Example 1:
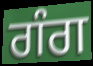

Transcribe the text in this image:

ਗੰਗ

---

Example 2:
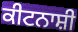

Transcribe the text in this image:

ਕੀਟਨਾਸ਼ੀ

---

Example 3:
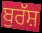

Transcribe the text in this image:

ਬੁਰੱਸ਼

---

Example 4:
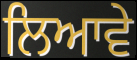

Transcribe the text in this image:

ਲਿਆਵੇ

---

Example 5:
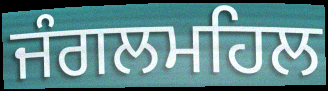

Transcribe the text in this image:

ਜੰਗਲਮਹਿਲ